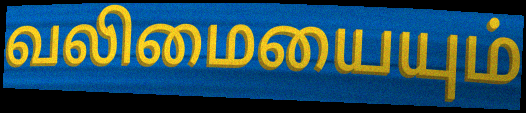
வலிமையையும்